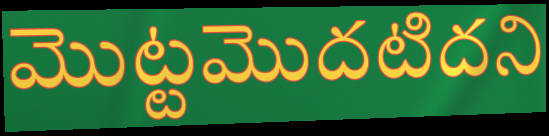
మొట్టమొదటిదని